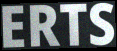
ERTS